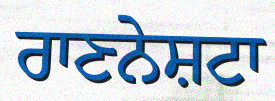
ਰਾਣਨੇਸ਼ਟਾ